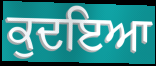
ਕੁਦਇਆ